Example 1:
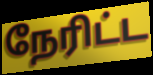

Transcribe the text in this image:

நேரிட்ட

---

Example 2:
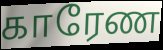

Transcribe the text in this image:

காரேண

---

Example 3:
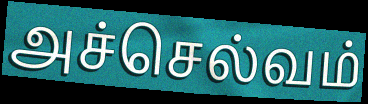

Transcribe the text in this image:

அச்செல்வம்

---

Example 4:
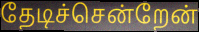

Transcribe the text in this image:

தேடிச்சென்றேன்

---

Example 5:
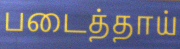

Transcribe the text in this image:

படைத்தாய்